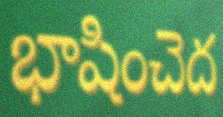
భాషించెద